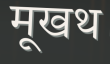
मूखथ